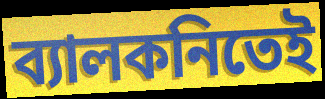
ব্যালকনিতেই